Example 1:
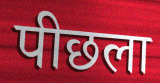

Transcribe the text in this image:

पीछला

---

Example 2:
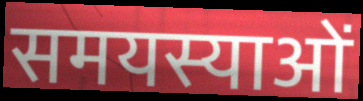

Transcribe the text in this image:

समयस्याओं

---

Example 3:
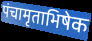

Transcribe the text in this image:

पंचामृताभिषेक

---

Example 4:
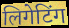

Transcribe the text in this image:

लिगेटिंग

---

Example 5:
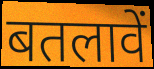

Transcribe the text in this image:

बतलावें